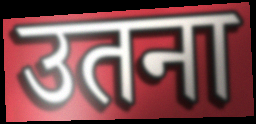
उतना